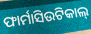
ଫାର୍ମାସିଉଟିକାଲ୍